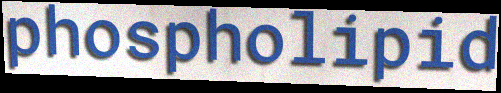
phospholipid